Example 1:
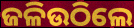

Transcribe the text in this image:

ଜଳିଉଠିଲେ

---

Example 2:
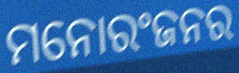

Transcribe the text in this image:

ମନୋରଂଜନର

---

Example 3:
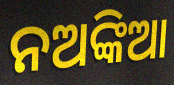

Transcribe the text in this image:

ନଅଙ୍କିଆ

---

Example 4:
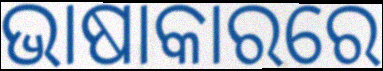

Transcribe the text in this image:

ଭାଷାକାରରେ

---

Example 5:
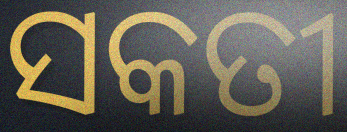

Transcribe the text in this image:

ସକତୀ